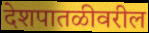
देशपातळीवरील